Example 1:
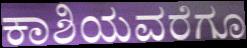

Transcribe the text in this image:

ಕಾಶಿಯವರೆಗೂ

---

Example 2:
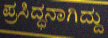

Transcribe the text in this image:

ಪ್ರಸಿದ್ಧನಾಗಿದ್ದು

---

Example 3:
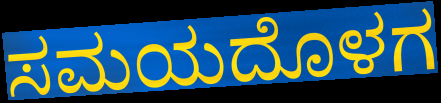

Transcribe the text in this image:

ಸಮಯದೊಳಗ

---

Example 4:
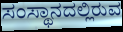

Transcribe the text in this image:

ಸಂಸ್ಥಾನದಲ್ಲಿರುವ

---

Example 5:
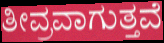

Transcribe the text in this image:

ತೀವ್ರವಾಗುತ್ತವೆ